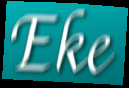
Eke